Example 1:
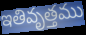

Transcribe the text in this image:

ఇతివృత్తము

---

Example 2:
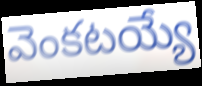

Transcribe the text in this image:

వెంకటయ్యే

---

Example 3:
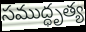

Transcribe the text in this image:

సముద్ధృత్య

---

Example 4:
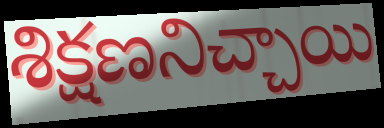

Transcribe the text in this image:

శిక్షణనిచ్చాయి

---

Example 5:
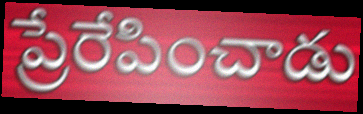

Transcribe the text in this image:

ప్రేరేపించాడు